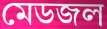
মেডজল